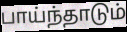
பாய்ந்தாடும்